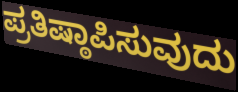
ಪ್ರತಿಷ್ಠಾಪಿಸುವುದು